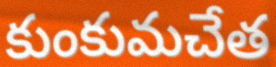
కుంకుమచేత